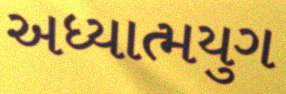
અધ્યાત્મયુગ